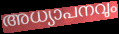
അധ്യാപനവും